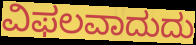
ವಿಫಲವಾದುದು